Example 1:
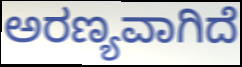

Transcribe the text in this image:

ಅರಣ್ಯವಾಗಿದೆ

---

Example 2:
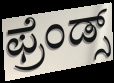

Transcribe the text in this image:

ಫ್ರೆಂಡ್ಸ್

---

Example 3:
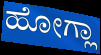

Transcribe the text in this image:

ಹೋಗ್ಲಾ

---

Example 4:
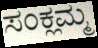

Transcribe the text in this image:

ಸಂಕ್ಲಮ್ಮ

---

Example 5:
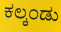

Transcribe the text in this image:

ಕಲ್ಕಂಡು